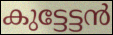
കുട്ടേട്ടൻ